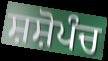
ਸ਼ਸ਼ੋਪੰਚ